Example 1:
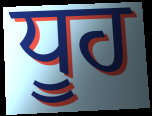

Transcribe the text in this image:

ਧੂਹ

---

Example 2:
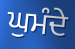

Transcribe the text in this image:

ਘੁਮੰਦੇ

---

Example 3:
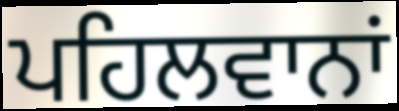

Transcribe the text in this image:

ਪਹਿਲਵਾਨਾਂ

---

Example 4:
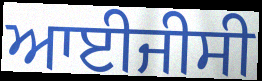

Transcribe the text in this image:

ਆਈਜੀਸੀ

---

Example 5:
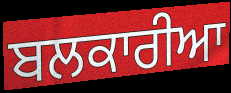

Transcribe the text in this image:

ਬਲਕਾਰੀਆ